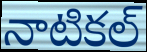
నాటికల్